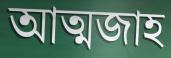
আত্মজাহ